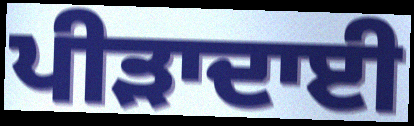
ਪੀੜਾਦਾਈ